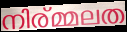
നിര്മ്മലത